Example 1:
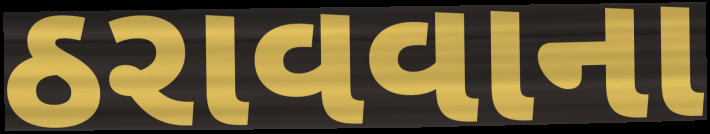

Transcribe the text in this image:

ઠરાવવાના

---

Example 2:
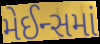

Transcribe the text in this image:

મેઈન્સમાં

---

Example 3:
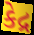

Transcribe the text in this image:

કેદ્ર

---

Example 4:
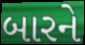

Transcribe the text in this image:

બારને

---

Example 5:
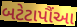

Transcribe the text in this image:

બટેટાપૌંઆ